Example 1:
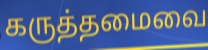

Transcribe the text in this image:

கருத்தமைவை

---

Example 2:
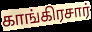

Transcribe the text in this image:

காங்கிரசார்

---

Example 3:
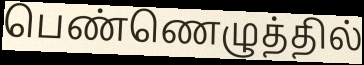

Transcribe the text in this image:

பெண்ணெழுத்தில்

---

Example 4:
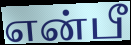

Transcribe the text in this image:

என்பீ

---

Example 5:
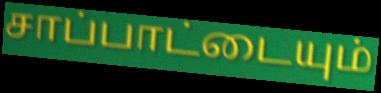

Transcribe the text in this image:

சாப்பாட்டையும்